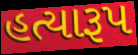
હત્યારૂપ